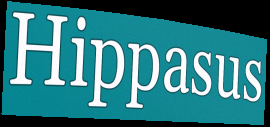
Hippasus